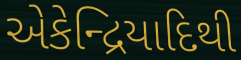
એકેન્દ્રિયાદિથી